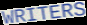
WRITERS